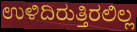
ಉಳಿದಿರುತ್ತಿರಲಿಲ್ಲ